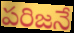
పరిజనే